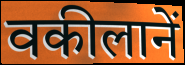
वकीलानें